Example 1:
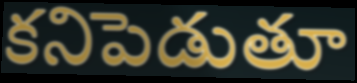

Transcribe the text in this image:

కనిపెడుతూ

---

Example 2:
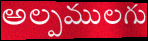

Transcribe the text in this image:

అల్పములగు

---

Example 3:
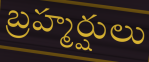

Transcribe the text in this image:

బ్రహ్మర్షులు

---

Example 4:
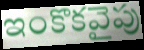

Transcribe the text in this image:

ఇంకొకవైపు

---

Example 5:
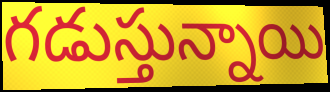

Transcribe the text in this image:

గడుస్తున్నాయి